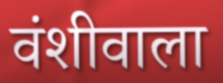
वंशीवाला